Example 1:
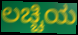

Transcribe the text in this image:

ಲಚ್ಚಿಯ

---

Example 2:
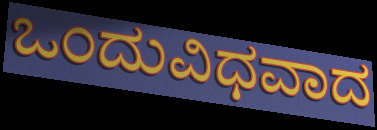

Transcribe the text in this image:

ಒಂದುವಿಧವಾದ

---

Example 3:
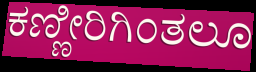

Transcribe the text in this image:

ಕಣ್ಣೀರಿಗಿಂತಲೂ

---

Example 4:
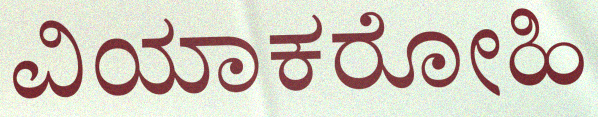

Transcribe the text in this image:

ವಿಯಾಕರೋಹಿ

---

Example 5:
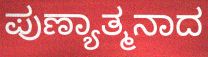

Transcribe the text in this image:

ಪುಣ್ಯಾತ್ಮನಾದ